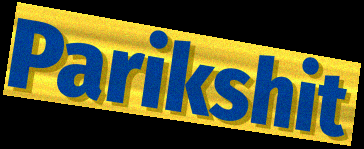
Parikshit